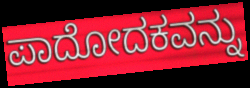
ಪಾದೋದಕವನ್ನು